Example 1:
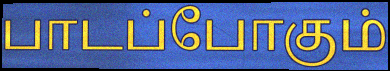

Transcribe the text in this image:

பாடப்போகும்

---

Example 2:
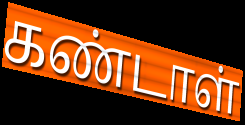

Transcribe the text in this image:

கண்டாள்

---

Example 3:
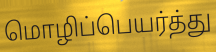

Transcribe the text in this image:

மொழிப்பெயர்த்து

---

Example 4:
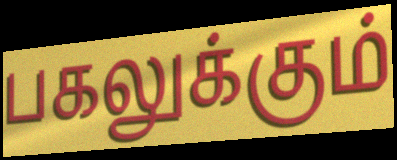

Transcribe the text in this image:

பகலுக்கும்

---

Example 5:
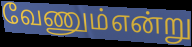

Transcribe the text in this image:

வேணும்என்று